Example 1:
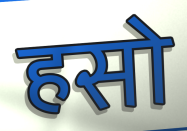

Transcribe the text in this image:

हसो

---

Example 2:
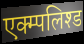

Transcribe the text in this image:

एक्म्पलिश्ड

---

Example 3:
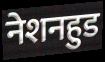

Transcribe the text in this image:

नेशनहुड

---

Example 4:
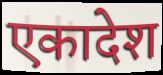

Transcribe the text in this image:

एकादेश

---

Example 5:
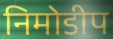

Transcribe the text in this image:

निमोडीप